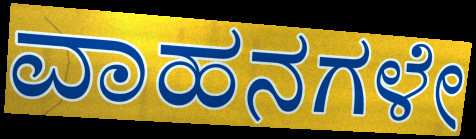
ವಾಹನಗಳೇ